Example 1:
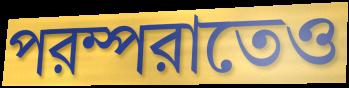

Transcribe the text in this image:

পরম্পরাতেও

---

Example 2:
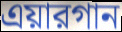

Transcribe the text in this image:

এয়ারগান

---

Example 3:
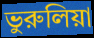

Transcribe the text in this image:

ভুরুলিয়া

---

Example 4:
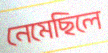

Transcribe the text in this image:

নেমেছিলে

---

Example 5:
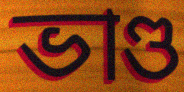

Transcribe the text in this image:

ভাণ্ড